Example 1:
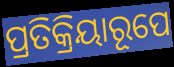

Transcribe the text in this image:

ପ୍ରତିକ୍ରିୟାରୂପେ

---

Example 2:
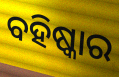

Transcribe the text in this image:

ବହିଷ୍କାର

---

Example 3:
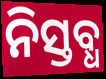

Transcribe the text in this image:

ନିସ୍ତବ୍ଧ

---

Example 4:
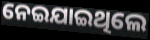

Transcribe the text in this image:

ନେଇଯାଇଥିଲେ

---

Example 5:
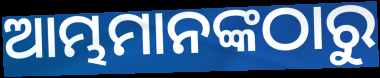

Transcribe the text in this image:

ଆମ୍ଭମାନଙ୍କଠାରୁ